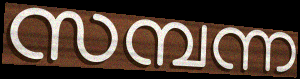
സമ്പന്ന